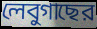
লেবুগাছের